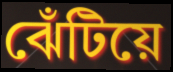
ঝেঁটিয়ে